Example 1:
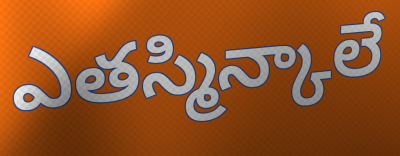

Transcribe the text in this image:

ఎతస్మిన్కాలే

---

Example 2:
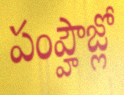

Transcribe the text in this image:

పంప్హౌజ్లో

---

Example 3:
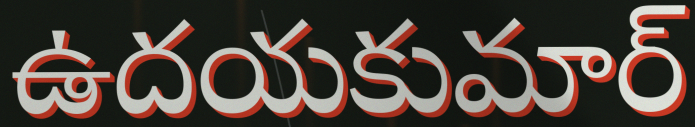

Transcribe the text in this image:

ఉదయకుమార్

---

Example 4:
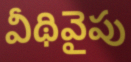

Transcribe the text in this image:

వీథివైపు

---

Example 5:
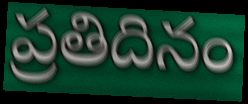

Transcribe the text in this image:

ప్రతిదినం